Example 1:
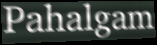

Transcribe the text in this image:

Pahalgam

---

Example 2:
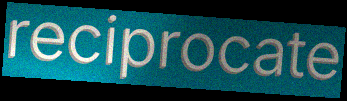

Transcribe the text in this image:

reciprocate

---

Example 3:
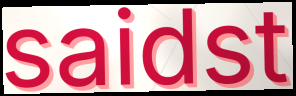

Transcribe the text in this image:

saidst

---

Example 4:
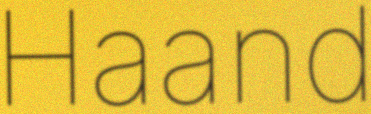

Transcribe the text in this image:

Haand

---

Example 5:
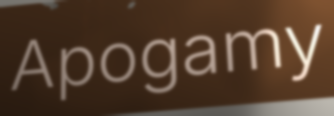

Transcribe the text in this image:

Apogamy